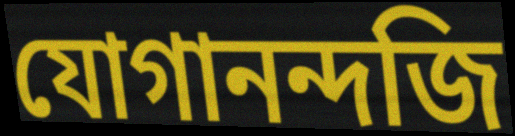
যোগানন্দজি